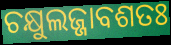
ଚକ୍ଷୁଲଜ୍ଜାବଶତଃ